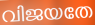
വിജയതേ